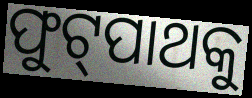
ଫୁଟ୍‌ପାଥକୁ